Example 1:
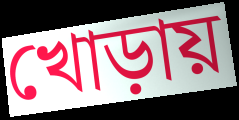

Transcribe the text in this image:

খোড়ায়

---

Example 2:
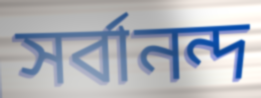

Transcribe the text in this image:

সর্বানন্দ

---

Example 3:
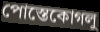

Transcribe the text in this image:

পোস্তেকোগলু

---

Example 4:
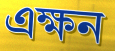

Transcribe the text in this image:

এক্ষন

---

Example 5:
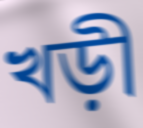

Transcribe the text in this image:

খড়ী